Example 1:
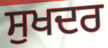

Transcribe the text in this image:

ਸੁਖਦਰ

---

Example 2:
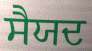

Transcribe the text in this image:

ਸੈਯਦ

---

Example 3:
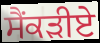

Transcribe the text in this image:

ਸੈਂਕੜੀਏ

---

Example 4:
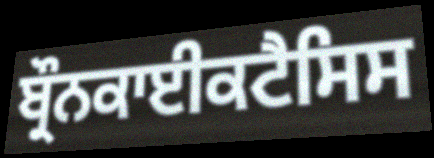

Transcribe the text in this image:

ਬ੍ਰੌਨਕਾਈਕਟੈਸਿਸ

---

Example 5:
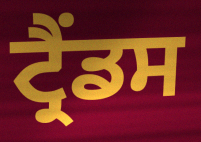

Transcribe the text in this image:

ਟ੍ਰੈਂਡਸ